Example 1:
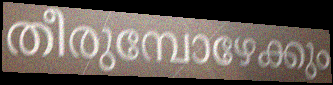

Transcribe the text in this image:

തീരുമ്പോഴേക്കും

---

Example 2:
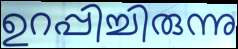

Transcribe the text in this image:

ഉറപ്പിച്ചിരുന്നു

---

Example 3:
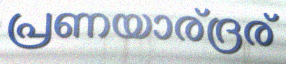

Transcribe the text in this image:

പ്രണയാര്ദ്രര്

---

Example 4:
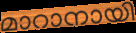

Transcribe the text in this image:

മാറാനായി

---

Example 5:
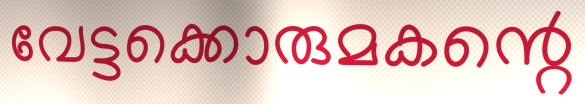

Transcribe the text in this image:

വേട്ടക്കൊരുമകന്റെ